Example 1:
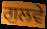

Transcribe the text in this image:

ਗੁਲਵੇ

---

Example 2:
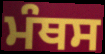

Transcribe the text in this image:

ਮੰਥਸ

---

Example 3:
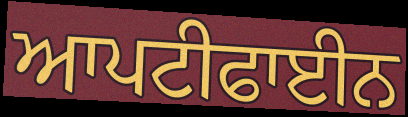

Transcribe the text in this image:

ਆਪਟੀਫਾਈਨ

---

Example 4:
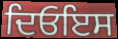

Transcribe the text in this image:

ਦਿਓਇਸ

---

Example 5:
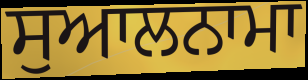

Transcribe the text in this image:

ਸੁਆਲਨਾਮਾ